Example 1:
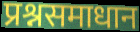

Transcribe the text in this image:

प्रश्नसमाधान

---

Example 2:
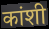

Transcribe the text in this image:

कांशी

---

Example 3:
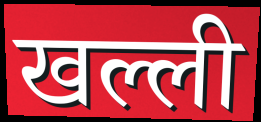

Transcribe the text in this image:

खल्ली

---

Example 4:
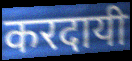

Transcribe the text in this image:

करदायी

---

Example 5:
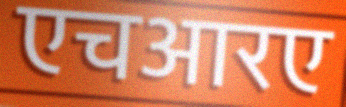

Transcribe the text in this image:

एचआरए